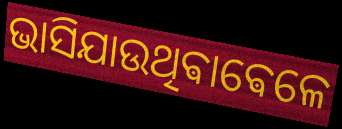
ଭାସିଯାଉଥିଵାଵେଳେ